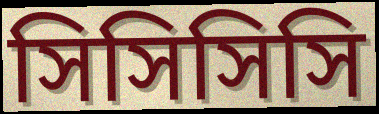
সিসিসিসি